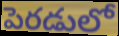
పెరడులో